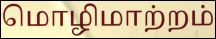
மொழிமாற்றம்